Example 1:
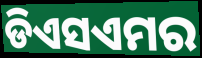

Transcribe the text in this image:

ଡିଏସଏମର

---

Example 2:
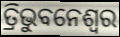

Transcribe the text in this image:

ତ୍ରିଭୁବନେଶ୍ବର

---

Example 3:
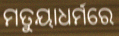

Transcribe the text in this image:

ମତୁୟାଧର୍ମରେ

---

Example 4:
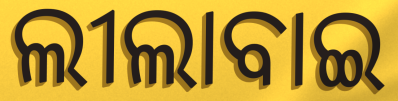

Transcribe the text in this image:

ଲୀଲାବାଇ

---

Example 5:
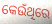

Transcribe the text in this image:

କେଉଁଥିରେ